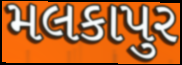
મલકાપુર